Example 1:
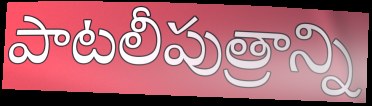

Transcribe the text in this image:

పాటలీపుత్రాన్ని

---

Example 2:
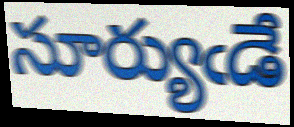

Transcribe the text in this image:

సూర్యుఁడే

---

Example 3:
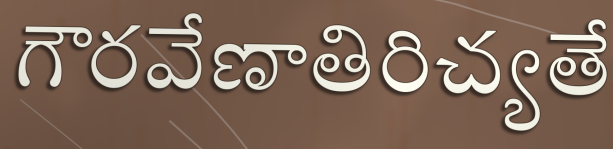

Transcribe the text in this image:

గౌరవేణాతిరిచ్యతే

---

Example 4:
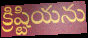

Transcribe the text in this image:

క్రిష్టియను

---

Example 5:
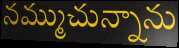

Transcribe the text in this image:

నమ్ముచున్నాను